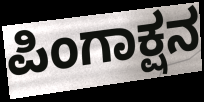
ಪಿಂಗಾಕ್ಷನ